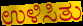
ಉಳಿಸಿತು